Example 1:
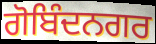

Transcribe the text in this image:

ਗੋਬਿੰਦਨਗਰ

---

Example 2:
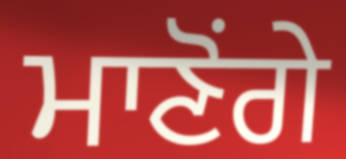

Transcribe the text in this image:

ਮਾਣੋਂਗੇ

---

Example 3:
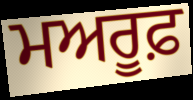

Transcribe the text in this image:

ਮਅਰੂਫ਼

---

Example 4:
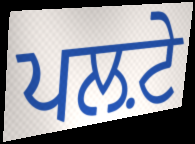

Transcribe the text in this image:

ਪਲ਼ਟੇ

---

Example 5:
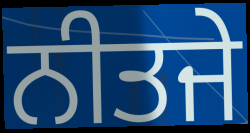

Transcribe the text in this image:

ਨੀਤਜੇ